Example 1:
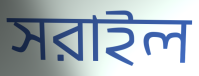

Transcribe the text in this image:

সরাইল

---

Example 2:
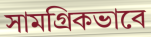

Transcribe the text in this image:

সামগ্রিকভাবে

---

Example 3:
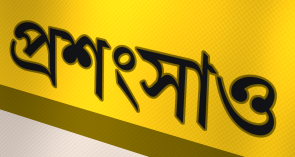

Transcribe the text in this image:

প্রশংসাও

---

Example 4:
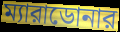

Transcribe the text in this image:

ম্যারাডোনার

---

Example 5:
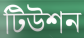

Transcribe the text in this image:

টিউশন